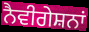
ਨੈਵੀਗੇਸ਼ਨਾਂ